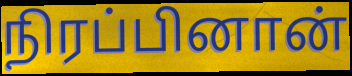
நிரப்பினான்